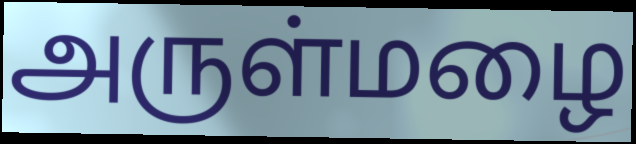
அருள்மழை